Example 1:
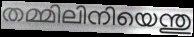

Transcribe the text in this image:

തമ്മിലിനിയെന്തു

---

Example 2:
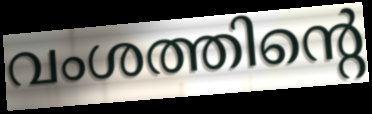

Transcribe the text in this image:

വംശത്തിന്റെ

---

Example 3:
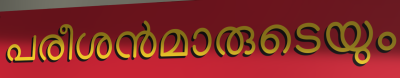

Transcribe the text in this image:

പരീശൻമാരുടെയും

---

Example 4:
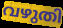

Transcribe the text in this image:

വഴുതി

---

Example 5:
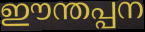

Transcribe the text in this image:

ഈന്തപ്പന